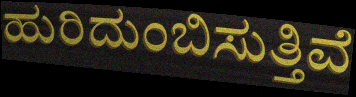
ಹುರಿದುಂಬಿಸುತ್ತಿವೆ